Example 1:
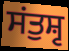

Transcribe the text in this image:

ਸਂਤੁਸ਼੍ਟ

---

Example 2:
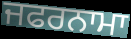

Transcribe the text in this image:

ਜਫਰਨਾਮਾ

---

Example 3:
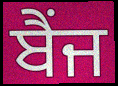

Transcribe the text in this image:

ਬੈਂਜ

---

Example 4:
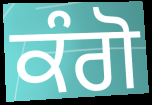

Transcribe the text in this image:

ਕੰਗੋ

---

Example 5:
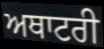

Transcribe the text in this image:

ਅਥਾਟਰੀ